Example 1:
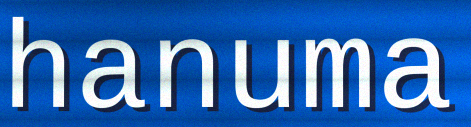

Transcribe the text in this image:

hanuma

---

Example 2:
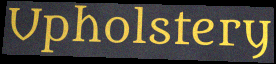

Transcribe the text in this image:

Upholstery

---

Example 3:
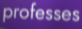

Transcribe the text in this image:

professes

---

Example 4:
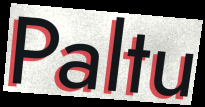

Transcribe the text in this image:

Paltu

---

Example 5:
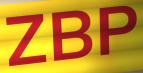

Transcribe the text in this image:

ZBP